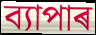
ব্যাপাৰ